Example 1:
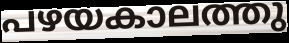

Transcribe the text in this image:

പഴയകാലത്തു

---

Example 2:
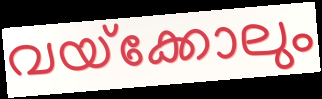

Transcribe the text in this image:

വയ്‌ക്കോലും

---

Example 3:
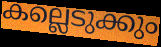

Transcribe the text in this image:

കല്ലെടുക്കും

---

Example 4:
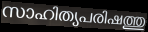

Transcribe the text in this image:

സാഹിത്യപരിഷത്തു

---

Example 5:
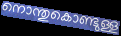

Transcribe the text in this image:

നൊന്തുകൊണ്ടുള്ള